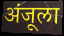
अंजूला